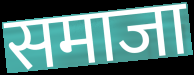
समाजा